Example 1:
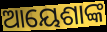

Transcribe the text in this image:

ଆୟେଶାଙ୍କ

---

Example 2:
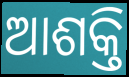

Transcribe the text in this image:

ଆଶକ୍ତି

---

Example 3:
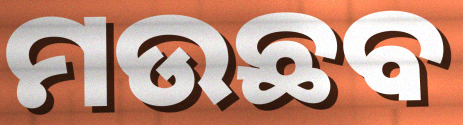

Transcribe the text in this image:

ମଉଛବ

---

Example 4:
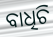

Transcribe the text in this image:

ବାଧିଚି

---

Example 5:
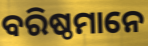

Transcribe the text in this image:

ବରିଷ୍ଠମାନେ